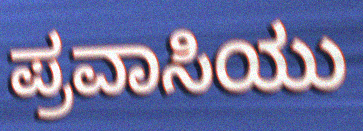
ಪ್ರವಾಸಿಯು